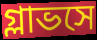
গ্লাভসে